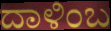
ದಾಳಿಂಬ